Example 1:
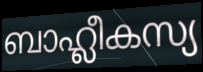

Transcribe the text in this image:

ബാഹ്ലീകസ്യ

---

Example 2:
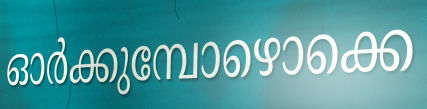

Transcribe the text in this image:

ഓർക്കുമ്പോഴൊക്കെ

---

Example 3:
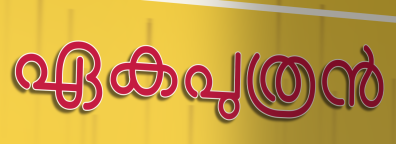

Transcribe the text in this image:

ഏകപുത്രൻ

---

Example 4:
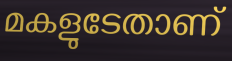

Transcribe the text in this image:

മകളുടേതാണ്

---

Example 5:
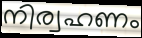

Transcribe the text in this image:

നിര്വഹണം